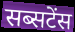
सब्सटेंस